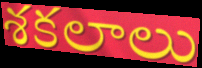
శకలాలు